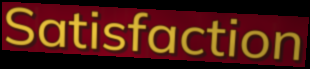
Satisfaction